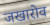
जखारोव